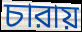
চারায়